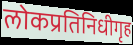
लोकप्रतिनिधीगृह